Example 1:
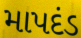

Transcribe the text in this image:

માપદંડ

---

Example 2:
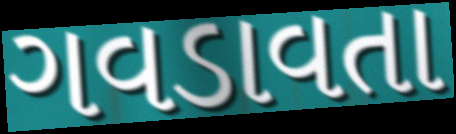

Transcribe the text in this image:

ગવડાવતા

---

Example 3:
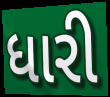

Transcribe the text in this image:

ધારી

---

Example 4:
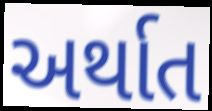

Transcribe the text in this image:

અર્થાત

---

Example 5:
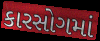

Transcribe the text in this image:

કારસોગમાં